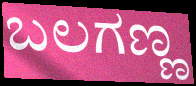
ಬಲಗಣ್ಣ